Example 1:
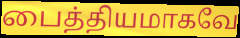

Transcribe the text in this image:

பைத்தியமாகவே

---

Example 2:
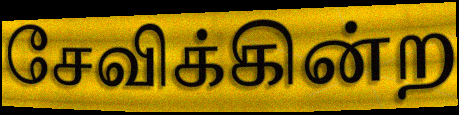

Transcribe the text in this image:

சேவிக்கின்ற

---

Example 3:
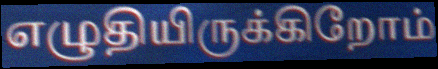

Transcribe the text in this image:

எழுதியிருக்கிறோம்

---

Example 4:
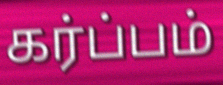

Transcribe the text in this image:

கர்ப்பம்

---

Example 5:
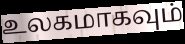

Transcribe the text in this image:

உலகமாகவும்